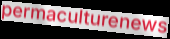
permaculturenews